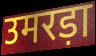
उमरड़ा